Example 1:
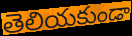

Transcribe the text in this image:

తెలియకుండా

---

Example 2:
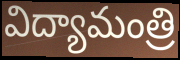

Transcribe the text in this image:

విద్యామంత్రి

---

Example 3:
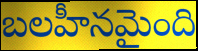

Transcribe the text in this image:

బలహీనమైంది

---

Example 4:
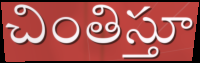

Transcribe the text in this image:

చింతిస్తూ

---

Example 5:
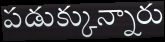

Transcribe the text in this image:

పడుక్కున్నారు